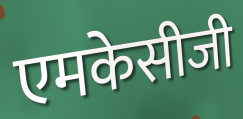
एमकेसीजी